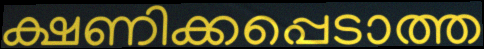
ക്ഷണിക്കപ്പെടാത്ത